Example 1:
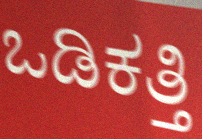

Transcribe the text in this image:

ಒಡಿಕತ್ತಿ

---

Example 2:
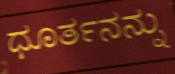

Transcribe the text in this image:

ಧೂರ್ತನನ್ನು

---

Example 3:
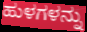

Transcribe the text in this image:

ಹುಳಗಳನ್ನು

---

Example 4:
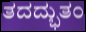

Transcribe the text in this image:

ತದದ್ಭುತಂ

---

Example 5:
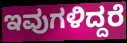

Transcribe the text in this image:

ಇವುಗಳಿದ್ದರೆ